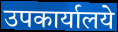
उपकार्यालये